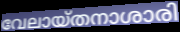
വേലായ്തനാശാരി